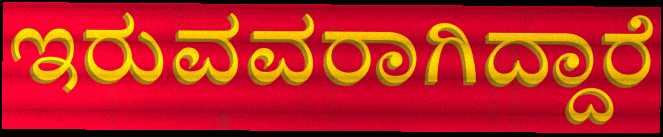
ಇರುವವರಾಗಿದ್ದಾರೆ